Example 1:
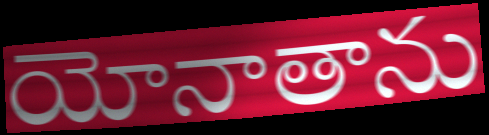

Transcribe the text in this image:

యోనాతాను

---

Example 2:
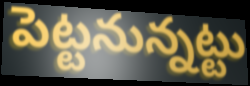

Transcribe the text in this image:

పెట్టనున్నట్టు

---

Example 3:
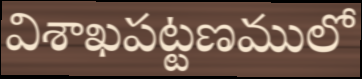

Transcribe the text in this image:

విశాఖపట్టణములో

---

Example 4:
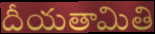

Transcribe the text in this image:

దీయతామితి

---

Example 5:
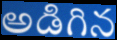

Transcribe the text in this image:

అడిగిన